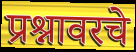
प्रश्नावरचे